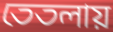
তেতলায়